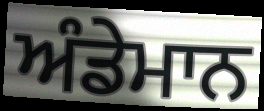
ਅੰਡੇਮਾਨ